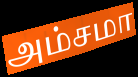
அம்சமா